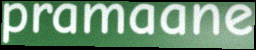
pramaane